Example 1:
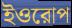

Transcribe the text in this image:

ইওরোপ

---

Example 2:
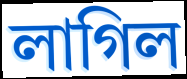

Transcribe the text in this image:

লাগিল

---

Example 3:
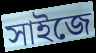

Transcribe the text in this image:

সাইজে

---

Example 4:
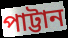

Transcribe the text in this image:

পাট্টান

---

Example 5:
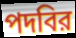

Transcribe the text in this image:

পদবির